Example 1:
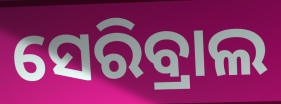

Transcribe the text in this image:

ସେରିବ୍ରାଲ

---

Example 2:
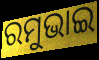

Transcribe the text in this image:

ରମୁଭାଇ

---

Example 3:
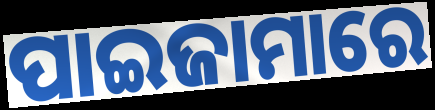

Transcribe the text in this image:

ପାଇଜାମାରେ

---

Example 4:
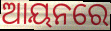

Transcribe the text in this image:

ଆୟନରେ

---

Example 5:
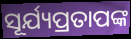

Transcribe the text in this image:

ସୂର୍ଯ୍ୟପ୍ରତାପଙ୍କ